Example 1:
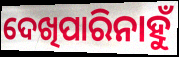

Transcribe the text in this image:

ଦେଖିପାରିନାହୁଁ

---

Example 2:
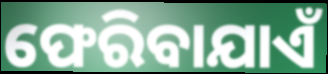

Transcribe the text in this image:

ଫେରିବାଯାଏଁ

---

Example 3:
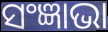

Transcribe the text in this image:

ସଂଜ୍ଞାଭା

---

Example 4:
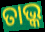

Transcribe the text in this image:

ତାଭ୍କ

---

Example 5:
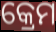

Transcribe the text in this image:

କ୍ରେମ